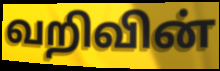
வறிவின்